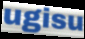
ugisu